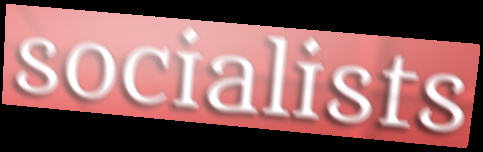
socialists